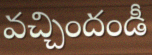
వచ్చిందండీ